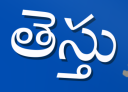
తెస్తు